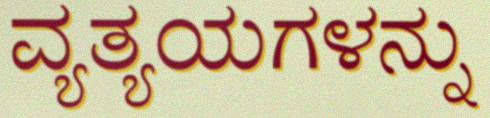
ವ್ಯತ್ಯಯಗಳನ್ನು